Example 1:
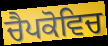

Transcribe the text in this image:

ਚੈਪਕੋਵਿਚ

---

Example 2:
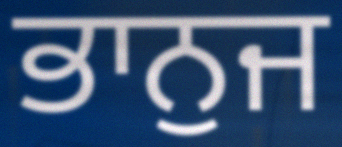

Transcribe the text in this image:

ਭਾਨੁਜ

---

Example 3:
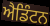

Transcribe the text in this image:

ਐਡਿੰਟਨ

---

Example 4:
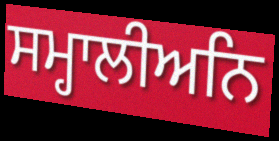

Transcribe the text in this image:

ਸਮ੍ਹਾਲੀਅਨਿ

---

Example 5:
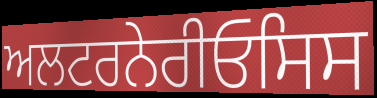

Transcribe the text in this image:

ਅਲਟਰਨੇਰੀਓਸਿਸ